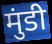
मुंडी